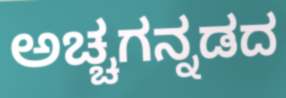
ಅಚ್ಚಗನ್ನಡದ